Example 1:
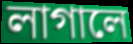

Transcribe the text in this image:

লাগালে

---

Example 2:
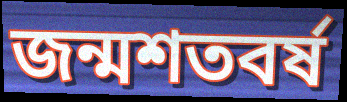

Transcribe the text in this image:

জন্মশতবর্ষ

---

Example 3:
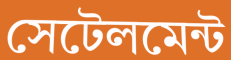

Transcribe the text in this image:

সেটেলমেন্ট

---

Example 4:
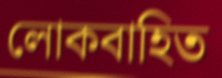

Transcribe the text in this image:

লোকবাহিত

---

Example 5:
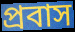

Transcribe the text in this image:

প্রবাস